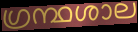
ഗ്രന്ഥശാല